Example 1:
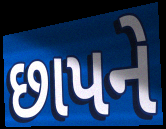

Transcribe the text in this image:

છાપને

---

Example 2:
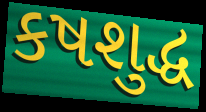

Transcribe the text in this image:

કષશુદ્ધ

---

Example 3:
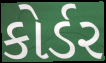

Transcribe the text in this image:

કોર્ડર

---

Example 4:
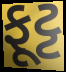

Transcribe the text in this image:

ફૂટ્ટ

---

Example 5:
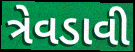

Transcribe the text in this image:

ત્રેવડાવી